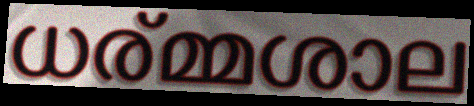
ധര്മ്മശാല